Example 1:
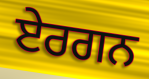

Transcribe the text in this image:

ਏਰਗਨ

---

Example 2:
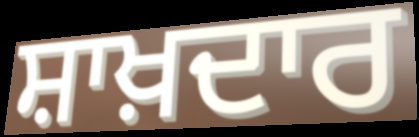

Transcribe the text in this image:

ਸ਼ਾਖ਼ਦਾਰ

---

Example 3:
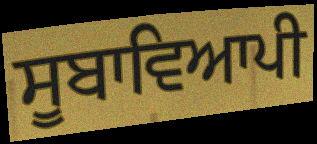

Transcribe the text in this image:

ਸੂਬਾਵਿਆਪੀ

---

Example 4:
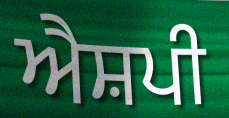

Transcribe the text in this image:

ਐਸ਼ਪੀ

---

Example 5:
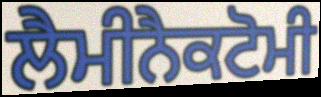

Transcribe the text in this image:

ਲੈਮੀਨੈਕਟੋਮੀ